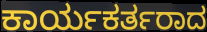
ಕಾರ್ಯಕರ್ತರಾದ